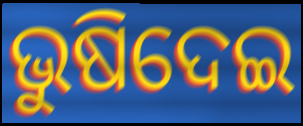
ଭୁଷିଦେଇ